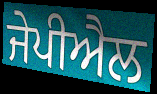
ਜੇਪੀਐਲ